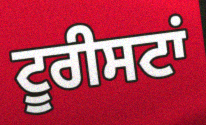
ਟੂਰੀਸਟਾਂ